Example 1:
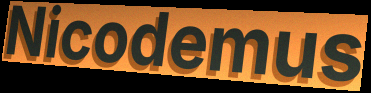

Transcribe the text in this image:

Nicodemus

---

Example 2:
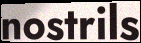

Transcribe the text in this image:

nostrils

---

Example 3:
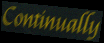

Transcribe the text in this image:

Continually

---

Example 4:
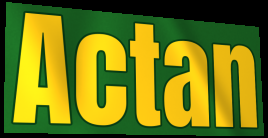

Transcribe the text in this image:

Actan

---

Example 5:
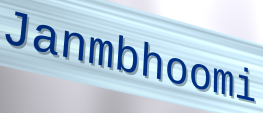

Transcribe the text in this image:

Janmbhoomi